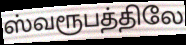
ஸ்வரூபத்திலே